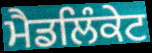
ਮੈਡਲਿੰਕੇਟ